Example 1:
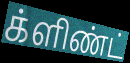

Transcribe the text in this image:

க்ளிண்ட்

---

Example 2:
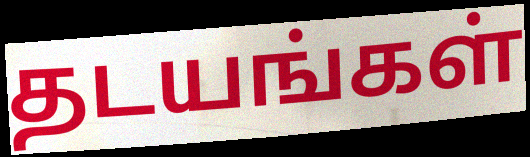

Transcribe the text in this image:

தடயங்கள்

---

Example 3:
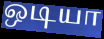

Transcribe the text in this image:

ஒடியா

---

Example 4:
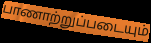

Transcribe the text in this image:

பாணாற்றுப்படையும்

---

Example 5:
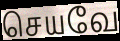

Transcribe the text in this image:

செயவே